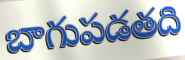
బాగుపడతది